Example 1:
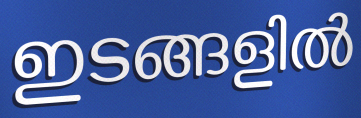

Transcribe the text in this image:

ഇടങ്ങളിൽ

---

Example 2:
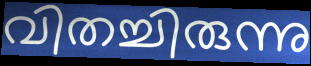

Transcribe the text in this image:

വിതച്ചിരുന്നു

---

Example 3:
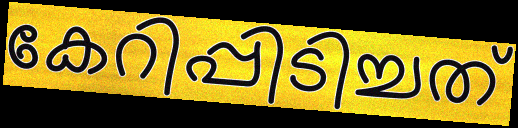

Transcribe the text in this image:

കേറിപ്പിടിച്ചത്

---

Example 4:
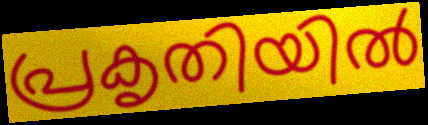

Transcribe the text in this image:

പ്രകൃതിയിൽ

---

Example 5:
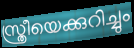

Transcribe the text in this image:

സ്ത്രീയെക്കുറിച്ചും